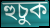
হুচুক